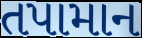
તપામાન